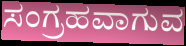
ಸಂಗ್ರಹವಾಗುವ